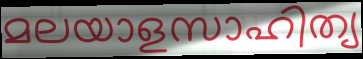
മലയാളസാഹിത്യ